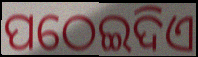
ପଠେଇଦିଏ